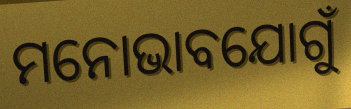
ମନୋଭାବଯୋଗୁଁ